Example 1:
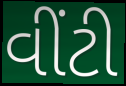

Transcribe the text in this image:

વીંટી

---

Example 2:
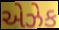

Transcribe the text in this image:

એઝેક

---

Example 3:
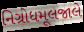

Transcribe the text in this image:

નિગ્રોધમૂલજાલે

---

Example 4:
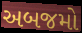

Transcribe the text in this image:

અબજમો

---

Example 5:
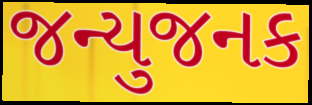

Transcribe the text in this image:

જન્યુજનક